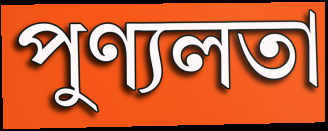
পুণ্যলতা